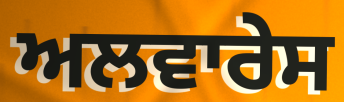
ਅਲਵਾਰੇਸ